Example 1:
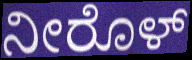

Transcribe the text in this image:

ನೀರೊಳ್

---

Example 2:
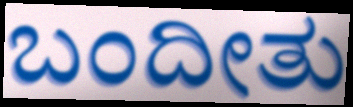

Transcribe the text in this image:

ಬಂದೀತು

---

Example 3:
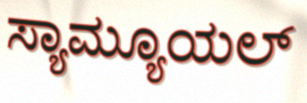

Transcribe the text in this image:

ಸ್ಯಾಮ್ಯೂಯಲ್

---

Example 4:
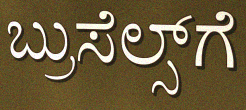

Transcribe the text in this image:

ಬ್ರುಸೆಲ್ಸ್‌ಗೆ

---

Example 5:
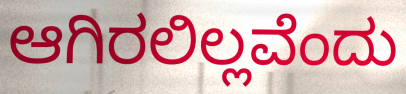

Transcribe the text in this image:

ಆಗಿರಲಿಲ್ಲವೆಂದು